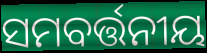
ସମବର୍ତ୍ତନୀୟ